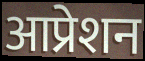
आप्रेशन